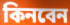
কিনবেন